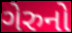
ગેરુનો